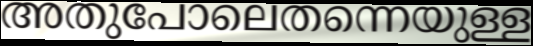
അതുപോലെതന്നെയുള്ള